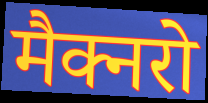
मैक्नरो